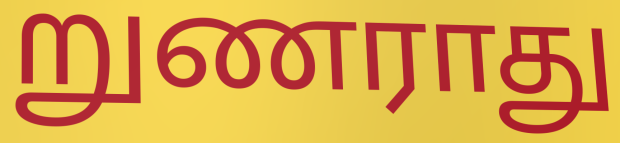
றுணராது